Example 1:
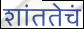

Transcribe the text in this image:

शांततेचं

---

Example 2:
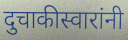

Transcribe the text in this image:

दुचाकीस्वारांनी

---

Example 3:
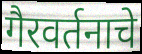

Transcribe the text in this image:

गैरवर्तनाचे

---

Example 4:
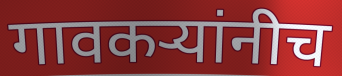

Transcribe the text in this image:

गावकऱ्यांनीच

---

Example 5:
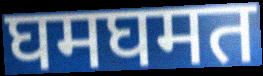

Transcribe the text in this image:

घमघमत